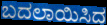
ಬದಲಾಯಿಸಿದ